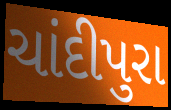
ચાંદીપુરા